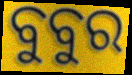
ବୁବୁର